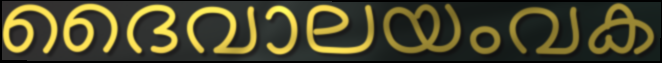
ദൈവാലയംവക